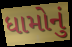
ધામોનું